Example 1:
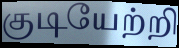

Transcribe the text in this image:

குடியேற்றி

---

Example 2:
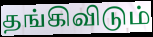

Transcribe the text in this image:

தங்கிவிடும்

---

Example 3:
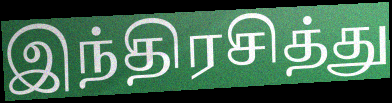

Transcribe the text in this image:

இந்திரசித்து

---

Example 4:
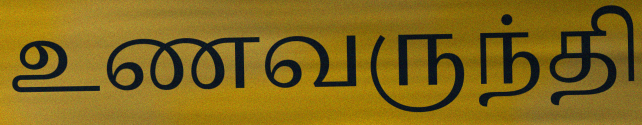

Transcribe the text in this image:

உணவருந்தி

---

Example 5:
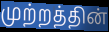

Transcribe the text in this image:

முற்றத்தின்